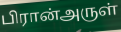
பிரான்அருள்